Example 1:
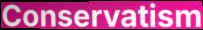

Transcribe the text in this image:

Conservatism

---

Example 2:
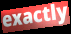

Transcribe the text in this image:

exactly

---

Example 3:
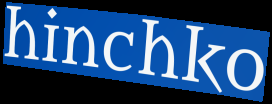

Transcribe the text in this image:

hinchko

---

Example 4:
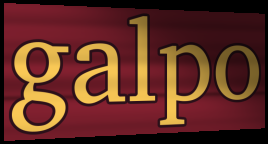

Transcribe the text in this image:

galpo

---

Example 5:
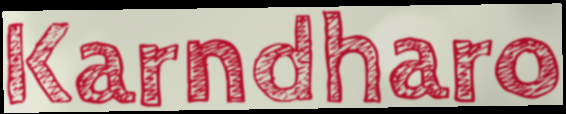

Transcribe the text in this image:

Karndharo